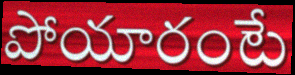
పోయారంటే